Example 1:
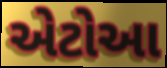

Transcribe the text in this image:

એટોઆ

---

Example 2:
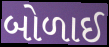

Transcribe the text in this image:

બોળાઈ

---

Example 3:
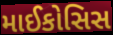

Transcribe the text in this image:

માઈકોસિસ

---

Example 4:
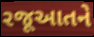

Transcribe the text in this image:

રજૂઆતને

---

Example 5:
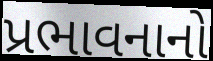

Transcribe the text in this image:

પ્રભાવનાનો